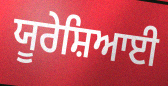
ਯੂਰੇਸ਼ਿਆਈ